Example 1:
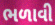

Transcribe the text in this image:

ભળાવી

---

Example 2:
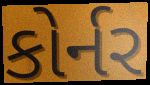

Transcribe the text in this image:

કોર્નર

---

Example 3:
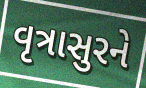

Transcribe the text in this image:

વૃત્રાસુરને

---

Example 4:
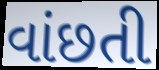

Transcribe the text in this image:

વાંછતી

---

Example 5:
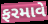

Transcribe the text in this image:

ફરમાવે